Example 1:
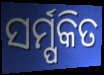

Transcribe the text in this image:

ସର୍ମ୍ପକିତ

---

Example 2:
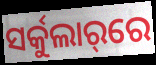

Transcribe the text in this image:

ସର୍କୁଲାର୍‌ରେ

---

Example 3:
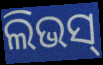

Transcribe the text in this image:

ଲିଭସ୍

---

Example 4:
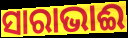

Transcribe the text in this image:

ସାରାଭାଈ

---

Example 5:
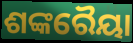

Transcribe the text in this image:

ଶଙ୍କରୈୟା